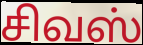
சிவஸ்